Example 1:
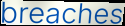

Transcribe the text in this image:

breaches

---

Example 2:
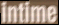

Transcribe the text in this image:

intime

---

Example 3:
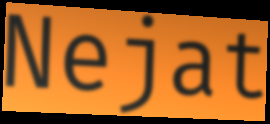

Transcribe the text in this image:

Nejat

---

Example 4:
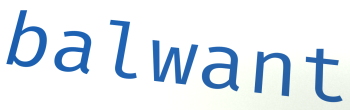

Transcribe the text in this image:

balwant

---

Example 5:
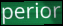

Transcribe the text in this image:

perior